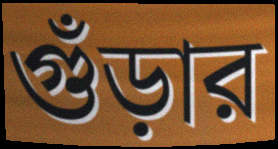
গুঁড়ার